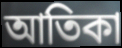
আতিকা